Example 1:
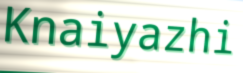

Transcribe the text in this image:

Knaiyazhi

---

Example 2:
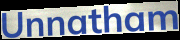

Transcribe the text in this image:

Unnatham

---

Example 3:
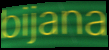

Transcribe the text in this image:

bijana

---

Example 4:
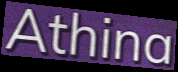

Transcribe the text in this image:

Athina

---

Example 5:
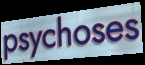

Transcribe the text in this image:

psychoses